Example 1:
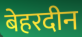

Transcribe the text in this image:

बेहरदीन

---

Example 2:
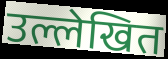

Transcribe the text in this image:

उल्‍लेखित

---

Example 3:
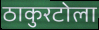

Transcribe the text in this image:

ठाकुरटोला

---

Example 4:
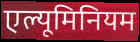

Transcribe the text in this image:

एल्यूमिनियम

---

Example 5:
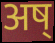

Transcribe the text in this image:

अष्